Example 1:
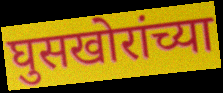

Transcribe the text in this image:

घुसखोरांच्या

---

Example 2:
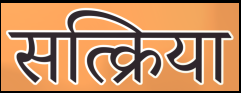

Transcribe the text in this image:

सत्क्रिया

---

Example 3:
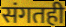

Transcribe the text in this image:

संगतही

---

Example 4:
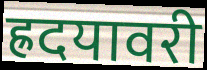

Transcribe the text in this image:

ह्रदयावरी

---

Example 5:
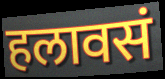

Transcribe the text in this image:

हलावसं